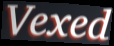
Vexed